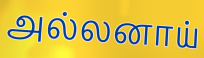
அல்லனாய்